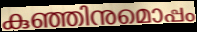
കുഞ്ഞിനുമൊപ്പം